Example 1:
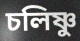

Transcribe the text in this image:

চলিষ্ণু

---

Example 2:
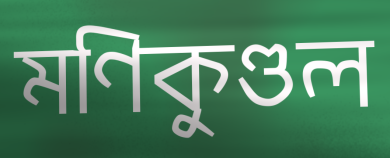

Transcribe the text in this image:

মণিকুণ্ডল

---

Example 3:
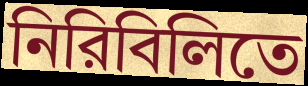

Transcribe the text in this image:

নিরিবিলিতে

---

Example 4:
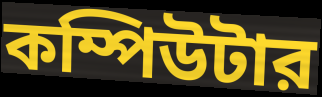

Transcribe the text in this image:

কম্পিউটার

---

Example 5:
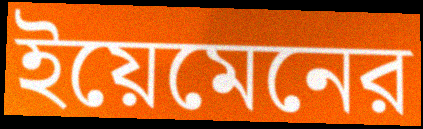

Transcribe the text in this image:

ইয়েমেনের